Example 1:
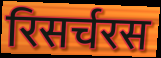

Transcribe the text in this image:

रिसर्चरस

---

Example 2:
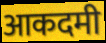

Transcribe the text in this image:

आकदमी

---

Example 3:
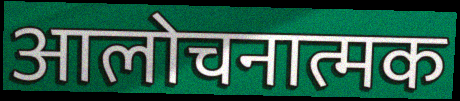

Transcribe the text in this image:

आलोचनात्मक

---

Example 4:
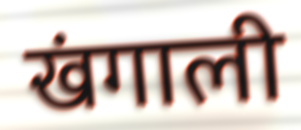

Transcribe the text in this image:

खंगाली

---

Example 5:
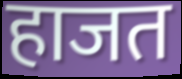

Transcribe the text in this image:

हाजत